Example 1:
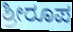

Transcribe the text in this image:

ಶ್ರೀರೂಪ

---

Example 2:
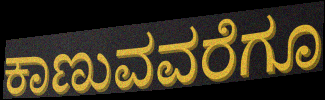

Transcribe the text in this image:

ಕಾಣುವವರೆಗೂ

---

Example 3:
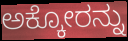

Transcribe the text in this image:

ಅಕ್ಕೋರನ್ನು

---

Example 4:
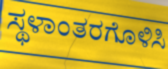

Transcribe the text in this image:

ಸ್ಥಳಾಂತರಗೊಳಿಸಿ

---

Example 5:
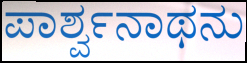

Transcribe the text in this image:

ಪಾರ್ಶ್ವನಾಥನು